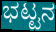
ಭಟ್ಟನ